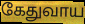
கேதுவாய